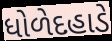
ધોળેદહાડે